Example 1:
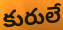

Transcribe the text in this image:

కురులే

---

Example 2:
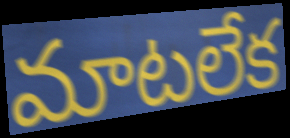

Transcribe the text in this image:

మాటలేక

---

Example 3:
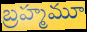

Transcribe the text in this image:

బ్రహ్మమూ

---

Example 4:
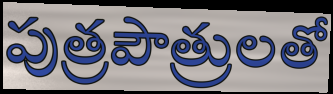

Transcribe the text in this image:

పుత్రపౌత్రులతో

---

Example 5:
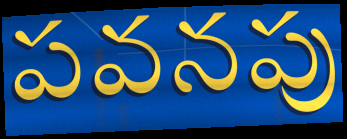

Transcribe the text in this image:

పవనపు